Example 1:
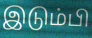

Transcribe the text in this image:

இடும்பி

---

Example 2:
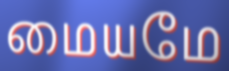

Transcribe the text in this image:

மையமே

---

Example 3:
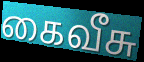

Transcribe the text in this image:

கைவீசு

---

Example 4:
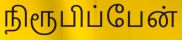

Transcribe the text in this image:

நிரூபிப்பேன்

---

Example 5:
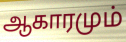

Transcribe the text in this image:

ஆகாரமும்